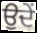
ਉਦੇਂ